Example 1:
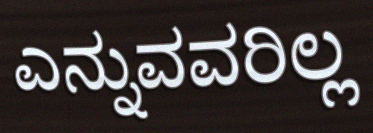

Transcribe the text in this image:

ಎನ್ನುವವರಿಲ್ಲ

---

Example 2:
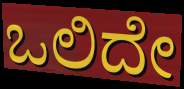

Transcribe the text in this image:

ಒಲಿದೇ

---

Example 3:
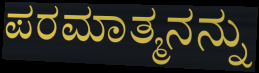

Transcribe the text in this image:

ಪರಮಾತ್ಮನನ್ನು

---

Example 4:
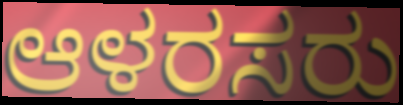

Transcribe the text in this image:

ಆಳರಸರು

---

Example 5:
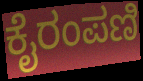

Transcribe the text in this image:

ಕೈರಂಪಣಿ